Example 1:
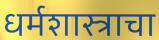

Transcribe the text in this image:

धर्मशास्त्राचा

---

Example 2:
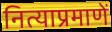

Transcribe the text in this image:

नित्याप्रमाणें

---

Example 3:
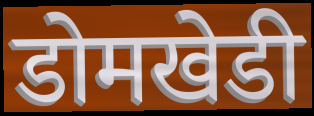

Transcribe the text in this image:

डोमखेडी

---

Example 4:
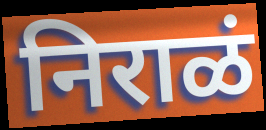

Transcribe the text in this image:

निराळं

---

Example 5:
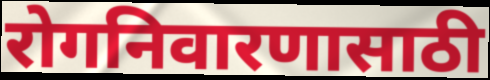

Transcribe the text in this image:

रोगनिवारणासाठी